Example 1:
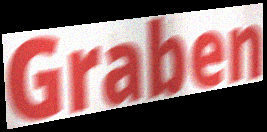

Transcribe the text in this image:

Graben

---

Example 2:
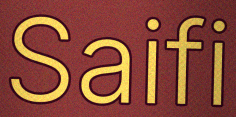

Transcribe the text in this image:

Saifi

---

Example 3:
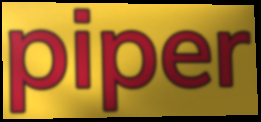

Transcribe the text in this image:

piper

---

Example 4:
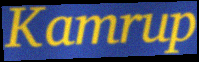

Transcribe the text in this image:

Kamrup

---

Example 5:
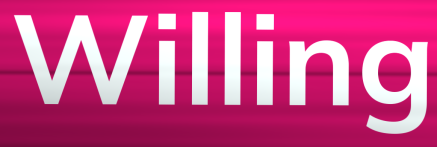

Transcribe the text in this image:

Willing